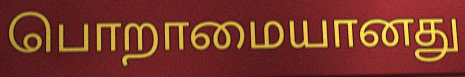
பொறாமையானது